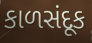
કાળસંદૂક